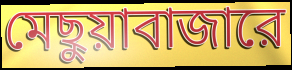
মেছুয়াবাজারে